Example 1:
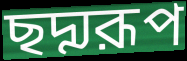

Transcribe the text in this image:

ছদ্মরূপ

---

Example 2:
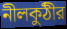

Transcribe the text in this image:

নীলকুঠীর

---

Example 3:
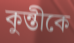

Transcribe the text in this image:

কুন্তীকে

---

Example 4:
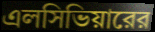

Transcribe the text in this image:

এলসিভিয়ারের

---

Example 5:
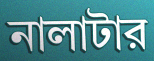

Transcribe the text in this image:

নালাটার